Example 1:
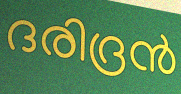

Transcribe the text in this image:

ദരിദ്രൻ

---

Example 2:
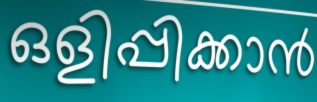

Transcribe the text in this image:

ഒളിപ്പിക്കാൻ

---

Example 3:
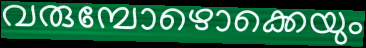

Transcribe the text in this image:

വരുമ്പോഴൊക്കെയും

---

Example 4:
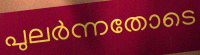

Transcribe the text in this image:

പുലർന്നതോടെ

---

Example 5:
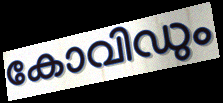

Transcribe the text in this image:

കോവിഡും